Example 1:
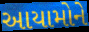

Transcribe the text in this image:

આયામોને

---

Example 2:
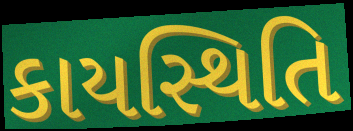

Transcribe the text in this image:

કાયસ્થિતિ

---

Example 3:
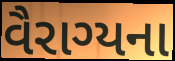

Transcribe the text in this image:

વૈરાગ્યના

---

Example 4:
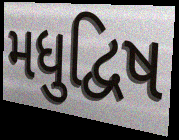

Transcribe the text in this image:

મધુદ્વિષ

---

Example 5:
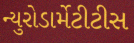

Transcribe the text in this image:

ન્યુરોડાર્મેટીટીસ